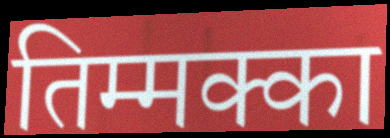
तिम्मक्का